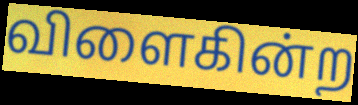
விளைகின்ற